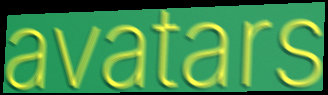
avatars